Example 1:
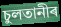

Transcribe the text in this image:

চুলতানীৰ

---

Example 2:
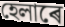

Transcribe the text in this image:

হেলাৰে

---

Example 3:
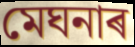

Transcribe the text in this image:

মেঘনাৰ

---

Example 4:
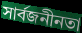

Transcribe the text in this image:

সাৰ্বজনীনতা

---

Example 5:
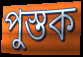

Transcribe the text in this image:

পুস্তক